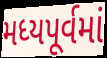
મધ્યપૂર્વમાં